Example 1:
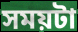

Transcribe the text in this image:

সময়টা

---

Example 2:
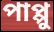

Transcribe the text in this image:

পাপ্পু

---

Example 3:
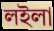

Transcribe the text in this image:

লইলা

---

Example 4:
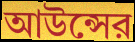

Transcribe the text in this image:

আউন্সের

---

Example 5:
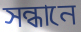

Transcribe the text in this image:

সন্ধানে